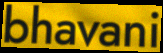
bhavani